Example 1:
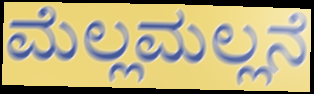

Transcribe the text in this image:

ಮೆಲ್ಲಮಲ್ಲನೆ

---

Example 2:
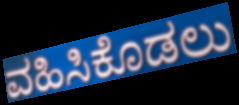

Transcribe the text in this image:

ವಹಿಸಿಕೊಡಲು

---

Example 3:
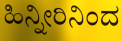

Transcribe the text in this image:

ಹಿನ್ನೀರಿನಿಂದ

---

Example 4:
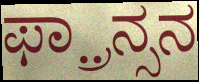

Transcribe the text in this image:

ಫ಼್ರಾನ್ಸನ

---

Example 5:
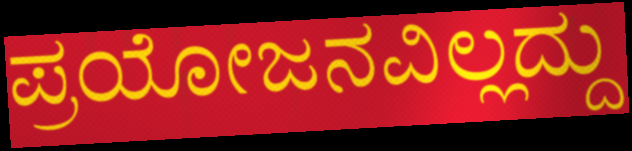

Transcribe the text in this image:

ಪ್ರಯೋಜನವಿಲ್ಲದ್ದು